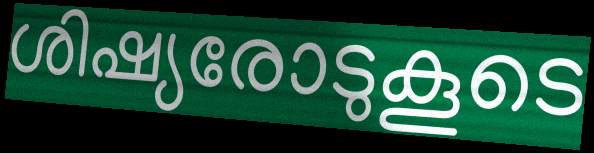
ശിഷ്യരോടുകൂടെ